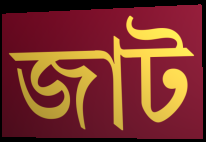
জাট